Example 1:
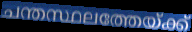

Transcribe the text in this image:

ചന്തസ്ഥലത്തേയ്ക്ക്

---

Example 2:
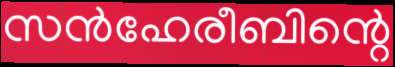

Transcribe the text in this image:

സൻഹേരീബിന്റെ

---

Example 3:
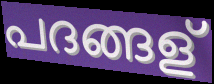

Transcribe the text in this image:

പദങ്ങള്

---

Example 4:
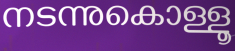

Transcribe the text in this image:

നടന്നുകൊള്ളൂ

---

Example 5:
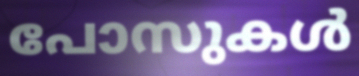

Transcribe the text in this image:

പോസുകൾ